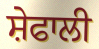
ਸ਼ੇਫਾਲੀ